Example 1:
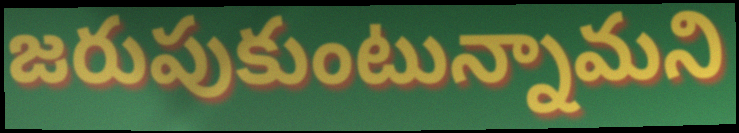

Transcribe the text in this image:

జరుపుకుంటున్నామని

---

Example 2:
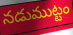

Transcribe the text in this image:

నడుముట్టం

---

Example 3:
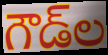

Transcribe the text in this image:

గౌడ్‌ల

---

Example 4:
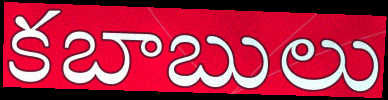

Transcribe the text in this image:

కబాబులు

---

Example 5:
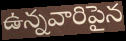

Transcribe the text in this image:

ఉన్నవారిపైన